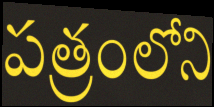
పత్రంలోని